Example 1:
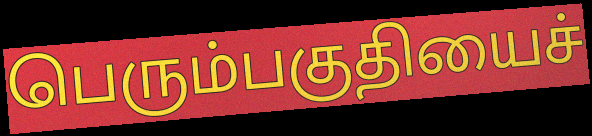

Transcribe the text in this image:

பெரும்பகுதியைச்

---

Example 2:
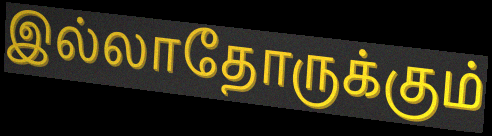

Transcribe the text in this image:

இல்லாதோருக்கும்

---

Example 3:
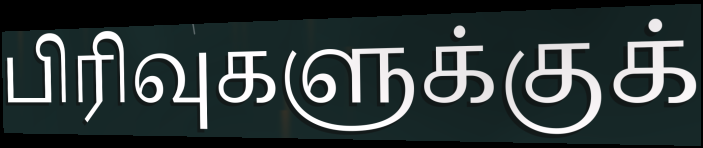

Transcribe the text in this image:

பிரிவுகளுக்குக்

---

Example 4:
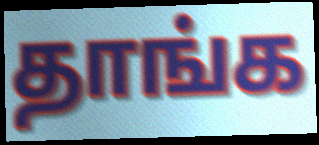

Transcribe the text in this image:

தாங்க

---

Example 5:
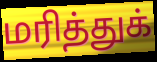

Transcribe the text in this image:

மரித்துக்